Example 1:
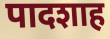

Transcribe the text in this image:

पादशाह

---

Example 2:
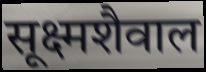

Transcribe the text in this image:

सूक्ष्मशैवाल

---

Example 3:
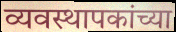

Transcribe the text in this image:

व्यवस्थापकांच्या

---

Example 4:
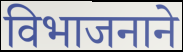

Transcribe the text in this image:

विभाजनाने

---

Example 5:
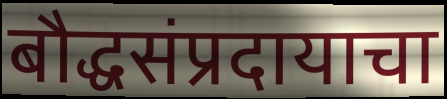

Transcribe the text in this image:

बौद्धसंप्रदायाचा